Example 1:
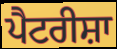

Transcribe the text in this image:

ਪੈਟਰੀਸ਼ਾ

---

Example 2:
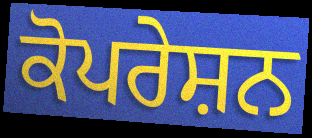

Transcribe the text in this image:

ਕੋਪਰੇਸ਼ਨ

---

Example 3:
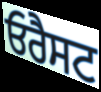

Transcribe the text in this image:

ਓਰੈਸਟ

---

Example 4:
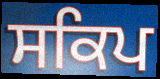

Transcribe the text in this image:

ਸਕਿਪ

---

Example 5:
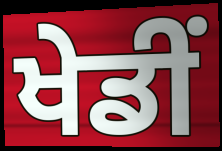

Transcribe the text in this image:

ਖੇਡੀਂ